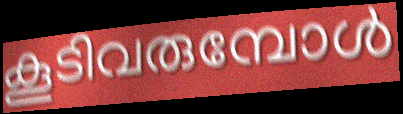
കൂടിവരുമ്പോൾ